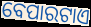
ବେପାରଟାଏ